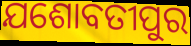
ଯଶୋବତୀପୁର